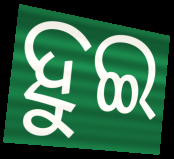
ହୁଇ